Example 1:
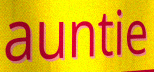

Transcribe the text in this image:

auntie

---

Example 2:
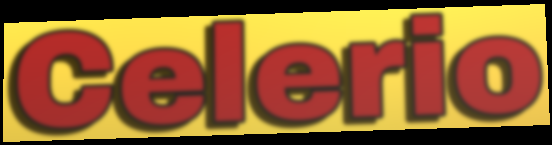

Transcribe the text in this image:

Celerio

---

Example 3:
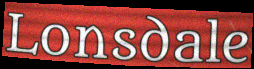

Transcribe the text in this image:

Lonsdale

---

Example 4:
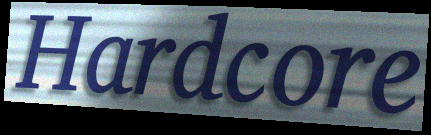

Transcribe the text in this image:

Hardcore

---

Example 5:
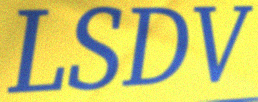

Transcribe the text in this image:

LSDV